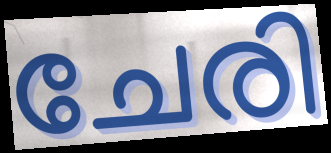
ചേരി